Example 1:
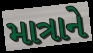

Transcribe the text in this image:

માત્રાને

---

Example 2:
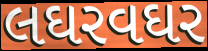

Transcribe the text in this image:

લઘરવઘર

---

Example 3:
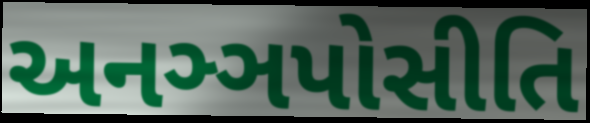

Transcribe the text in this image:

અનઞ્ઞપોસીતિ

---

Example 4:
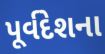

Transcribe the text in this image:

પૂર્વદેશના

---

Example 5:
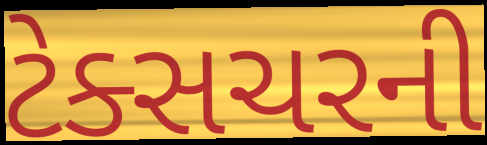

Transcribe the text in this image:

ટેક્સચરની